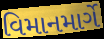
વિમાનમાર્ગે